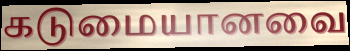
கடுமையானவை